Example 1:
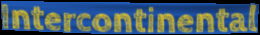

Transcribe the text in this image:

Intercontinental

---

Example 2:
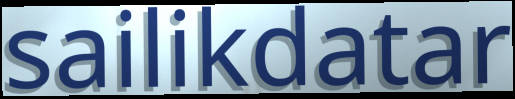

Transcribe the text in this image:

sailikdatar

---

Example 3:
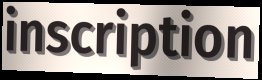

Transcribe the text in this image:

inscription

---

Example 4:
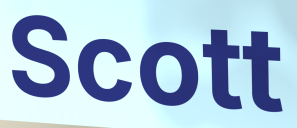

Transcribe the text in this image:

Scott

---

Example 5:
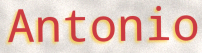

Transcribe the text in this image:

Antonio